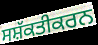
ਸਸ਼ੱਕਤੀਕਰਨ